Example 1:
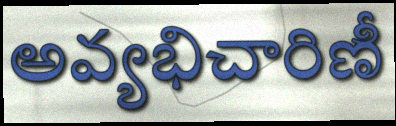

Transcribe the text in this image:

అవ్యభిచారిణీ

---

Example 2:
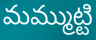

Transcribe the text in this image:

మమ్ముట్టి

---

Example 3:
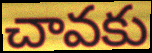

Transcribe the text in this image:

చావకు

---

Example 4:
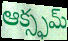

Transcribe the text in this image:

ఆక్స్ఫమ్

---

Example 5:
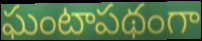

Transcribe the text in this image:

ఘంటాపథంగా